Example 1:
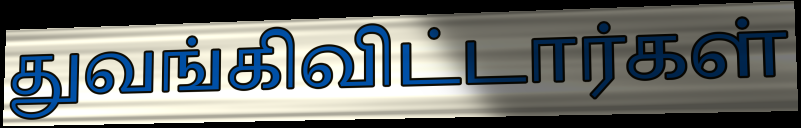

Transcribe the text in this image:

துவங்கிவிட்டார்கள்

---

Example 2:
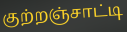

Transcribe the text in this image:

குற்றஞ்சாட்டி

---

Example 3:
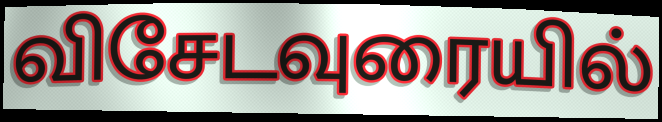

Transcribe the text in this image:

விசேடவுரையில்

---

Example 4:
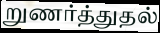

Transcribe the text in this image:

றுணர்த்துதல்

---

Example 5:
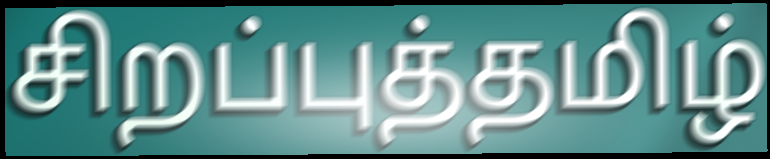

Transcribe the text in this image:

சிறப்புத்தமிழ்